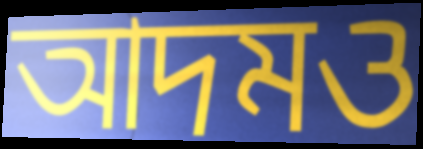
আদমও